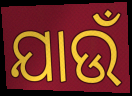
ଯାଉଁ